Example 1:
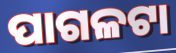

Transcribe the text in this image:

ପାଗଳଟା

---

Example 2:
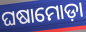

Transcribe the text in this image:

ଘଷାମୋଡ଼ା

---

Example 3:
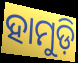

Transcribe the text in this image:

ହାମୁଡ଼ି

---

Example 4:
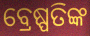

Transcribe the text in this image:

ବ୍ରେଷ୍ପତିଙ୍କ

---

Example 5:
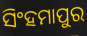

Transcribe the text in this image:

ସିଂହମାପୁର